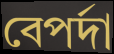
বেপর্দা